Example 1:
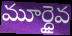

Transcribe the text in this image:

మూర్ధైవ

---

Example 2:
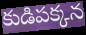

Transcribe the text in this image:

కుడిపక్కన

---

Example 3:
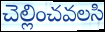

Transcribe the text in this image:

చెల్లించవలసి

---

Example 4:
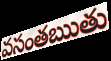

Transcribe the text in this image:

వసంతఋతు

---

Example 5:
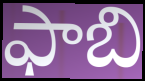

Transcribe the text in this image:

ఫాబి